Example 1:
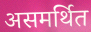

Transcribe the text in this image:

असमर्थित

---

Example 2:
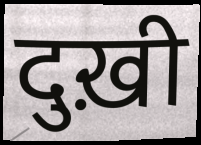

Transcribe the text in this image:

दुख़ी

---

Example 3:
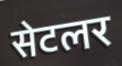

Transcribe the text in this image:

सेटलर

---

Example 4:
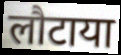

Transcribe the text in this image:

लौटाया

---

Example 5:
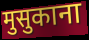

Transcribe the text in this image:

मुसुकाना